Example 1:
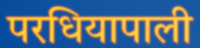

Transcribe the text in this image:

परधियापाली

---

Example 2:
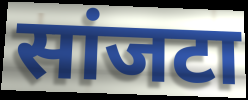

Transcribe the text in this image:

सांजटा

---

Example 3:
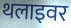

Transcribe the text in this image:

थलाइवर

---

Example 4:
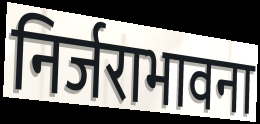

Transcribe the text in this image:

निर्जराभावना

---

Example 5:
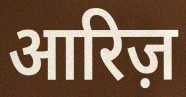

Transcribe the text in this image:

आरिज़